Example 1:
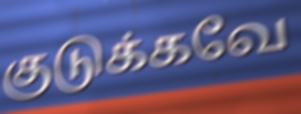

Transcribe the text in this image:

குடுக்கவே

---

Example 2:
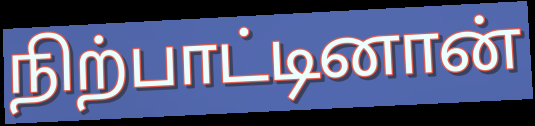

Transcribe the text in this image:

நிற்பாட்டினான்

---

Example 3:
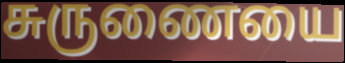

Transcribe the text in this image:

சுருணையை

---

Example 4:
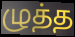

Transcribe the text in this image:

ழுத்த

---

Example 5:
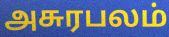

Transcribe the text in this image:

அசுரபலம்